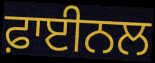
ਫ਼ਾਈਨਲ